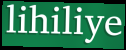
lihiliye